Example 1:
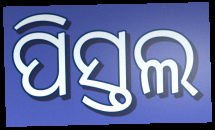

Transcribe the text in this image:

ପିସ୍ତଲ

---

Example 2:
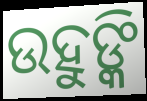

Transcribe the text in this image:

ଉହୁଙ୍କି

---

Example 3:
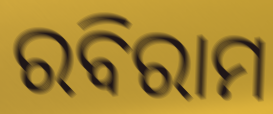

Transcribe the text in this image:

ରବିରାମ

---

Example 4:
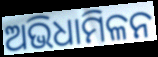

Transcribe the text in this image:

ଅଭିଧାମିଳନ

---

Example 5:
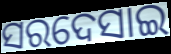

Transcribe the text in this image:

ସରଦେସାଇ